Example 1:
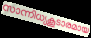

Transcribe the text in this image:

സാന്നിധ്യകൂടാരമായ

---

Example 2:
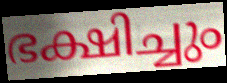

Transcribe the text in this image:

ഭക്ഷിച്ചും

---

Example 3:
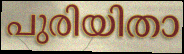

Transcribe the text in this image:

പുരിയിതാ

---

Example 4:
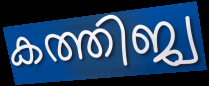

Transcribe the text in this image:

കത്തിജ്വ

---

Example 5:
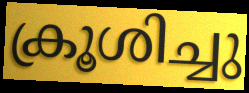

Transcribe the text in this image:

ക്രൂശിച്ചു